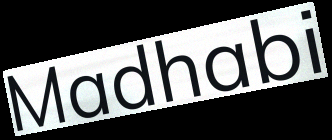
Madhabi